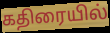
கதிரையில்